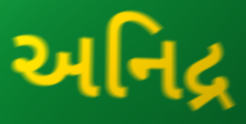
અનિદ્ર